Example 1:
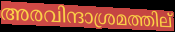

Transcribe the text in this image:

അരവിന്ദാശ്രമത്തില്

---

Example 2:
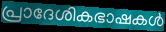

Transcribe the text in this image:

പ്രാദേശികഭാഷകൾ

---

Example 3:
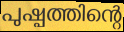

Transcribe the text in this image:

പുഷ്പത്തിന്റെ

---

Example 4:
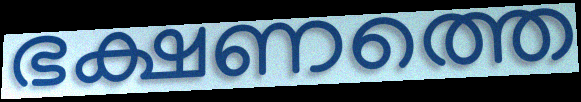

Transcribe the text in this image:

ഭക്ഷണത്തെ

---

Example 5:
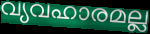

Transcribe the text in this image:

വ്യവഹാരമല്ല